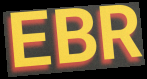
EBR